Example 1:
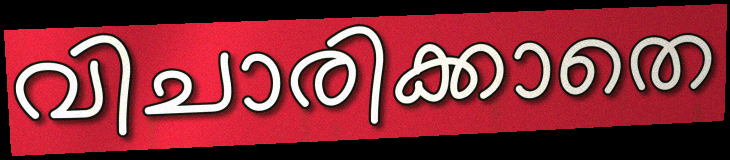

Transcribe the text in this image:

വിചാരിക്കാതെ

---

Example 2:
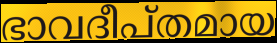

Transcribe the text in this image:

ഭാവദീപ്തമായ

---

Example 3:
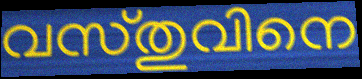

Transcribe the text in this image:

വസ്തുവിനെ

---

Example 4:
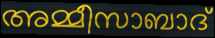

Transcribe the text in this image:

അമ്മീസാബാദ്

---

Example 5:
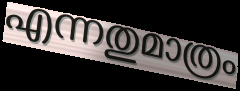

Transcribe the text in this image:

എന്നതുമാത്രം